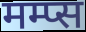
मम्प्स